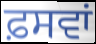
ਫ਼ਸਵਾਂ